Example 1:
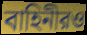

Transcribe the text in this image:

বাহিনীরও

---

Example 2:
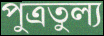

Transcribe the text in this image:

পুত্রতুল্য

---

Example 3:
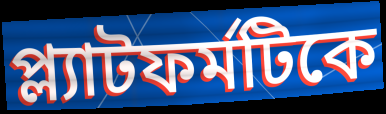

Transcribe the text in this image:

প্ল্যাটফর্মটিকে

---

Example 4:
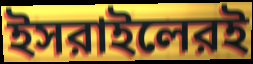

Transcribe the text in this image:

ইসরাইলেরই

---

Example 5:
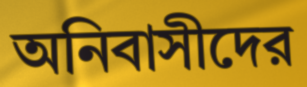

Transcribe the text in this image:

অনিবাসীদের